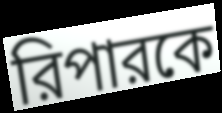
রিপারকে